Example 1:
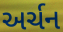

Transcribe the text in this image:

અર્ચન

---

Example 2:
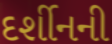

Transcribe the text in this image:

દર્શીનની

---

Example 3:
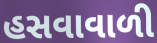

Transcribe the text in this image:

હસવાવાળી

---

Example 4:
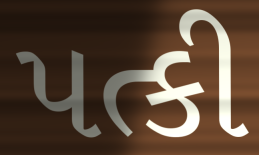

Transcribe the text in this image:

પત્કી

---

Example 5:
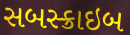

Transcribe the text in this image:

સબસ્ક્રાઇબ